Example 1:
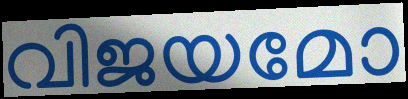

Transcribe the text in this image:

വിജയമോ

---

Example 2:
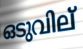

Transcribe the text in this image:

ഒടുവില്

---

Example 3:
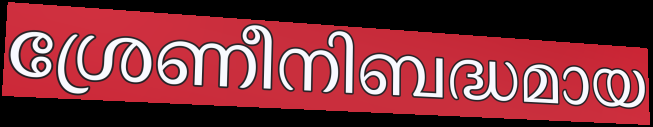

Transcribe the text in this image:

ശ്രേണീനിബദ്ധമായ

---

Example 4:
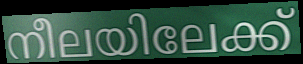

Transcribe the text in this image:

നീലയിലേക്ക്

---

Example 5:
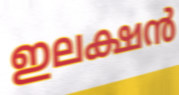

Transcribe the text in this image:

ഇലക്ഷൻ